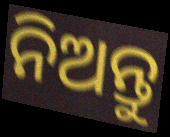
ନିଅନ୍ତୁ